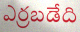
ఎర్రబడేది